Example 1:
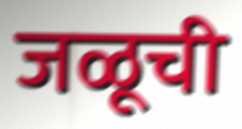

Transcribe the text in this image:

जळूची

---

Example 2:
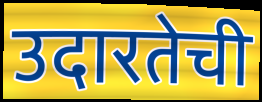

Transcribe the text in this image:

उदारतेची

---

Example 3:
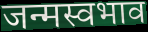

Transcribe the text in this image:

जन्मस्वभाव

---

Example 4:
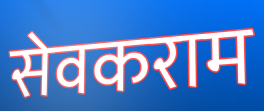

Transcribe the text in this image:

सेवकराम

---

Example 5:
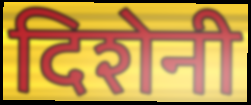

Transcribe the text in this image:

दिशेनी